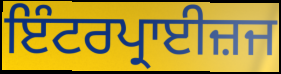
ਇੰਟਰਪ੍ਰਾਈਜ਼ਜ